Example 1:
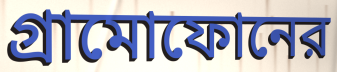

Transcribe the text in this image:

গ্রামোফোনের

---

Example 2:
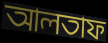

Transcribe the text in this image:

আলতাফ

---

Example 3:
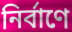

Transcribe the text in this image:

নির্বাণে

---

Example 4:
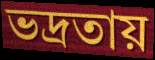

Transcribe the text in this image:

ভদ্রতায়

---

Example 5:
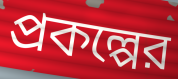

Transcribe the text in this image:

প্রকল্পের